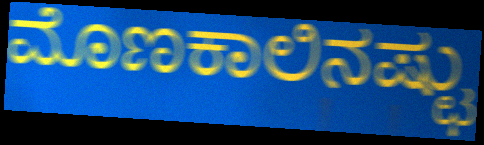
ಮೊಣಕಾಲಿನಷ್ಟು